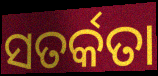
ସତର୍କତା